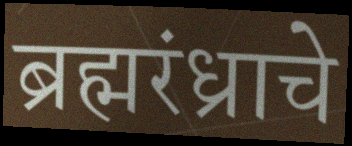
ब्रह्मरंध्राचे